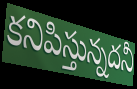
కనిపిస్తున్నదనీ